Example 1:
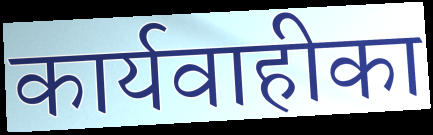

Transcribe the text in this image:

कार्यवाहीका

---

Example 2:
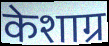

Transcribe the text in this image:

केशाग्र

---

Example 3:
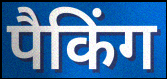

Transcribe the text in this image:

पैकिंग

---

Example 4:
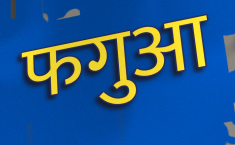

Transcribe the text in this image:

फगुआ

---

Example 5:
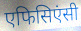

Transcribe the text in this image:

एफिसिएंसी